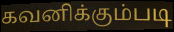
கவனிக்கும்படி